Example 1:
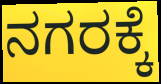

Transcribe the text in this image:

ನಗರಕ್ಕೆ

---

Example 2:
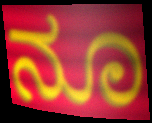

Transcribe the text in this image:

ನೂ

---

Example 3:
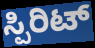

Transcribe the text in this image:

ಸ್ಪಿರಿಟ್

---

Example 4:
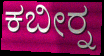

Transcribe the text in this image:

ಕಬೀರ್‍ನ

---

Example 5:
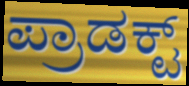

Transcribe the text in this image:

ಪ್ರಾಡಕ್ಟ್